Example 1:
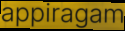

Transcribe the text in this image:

appiragam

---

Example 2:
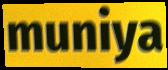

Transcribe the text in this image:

muniya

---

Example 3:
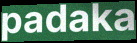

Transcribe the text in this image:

padaka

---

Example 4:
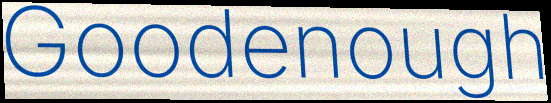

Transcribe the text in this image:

Goodenough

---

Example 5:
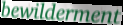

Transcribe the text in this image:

bewilderment